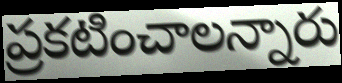
ప్రకటించాలన్నారు